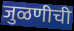
जुळणीची